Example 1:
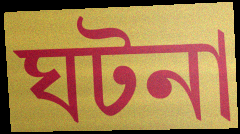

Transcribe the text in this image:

ঘটনা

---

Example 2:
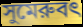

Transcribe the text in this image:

সুমেরুবৎ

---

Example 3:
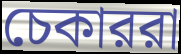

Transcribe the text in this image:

চেকাররা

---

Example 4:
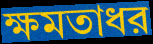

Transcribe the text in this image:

ক্ষমতাধর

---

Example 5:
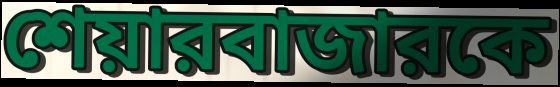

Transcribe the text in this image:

শেয়ারবাজারকে